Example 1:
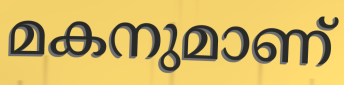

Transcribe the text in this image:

മകനുമാണ്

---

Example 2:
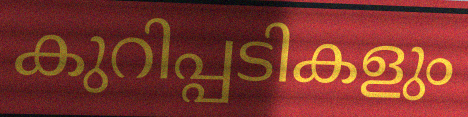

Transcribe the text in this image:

കുറിപ്പടികളും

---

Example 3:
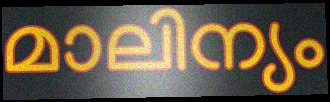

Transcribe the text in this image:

മാലിന്യം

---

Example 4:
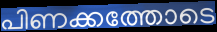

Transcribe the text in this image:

പിണക്കത്തോടെ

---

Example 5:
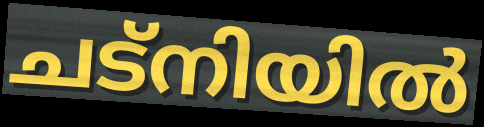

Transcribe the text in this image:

ചട്നിയിൽ